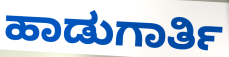
ಹಾಡುಗಾರ್ತಿ